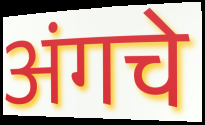
अंगचे